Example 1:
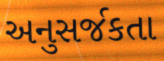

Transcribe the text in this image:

અનુસર્જકતા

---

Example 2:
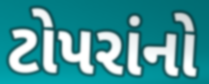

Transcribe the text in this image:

ટોપરાંનો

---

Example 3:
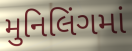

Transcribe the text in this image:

મુનિલિંગમાં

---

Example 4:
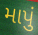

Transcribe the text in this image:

માપું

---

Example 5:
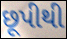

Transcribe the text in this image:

છૂપીથી